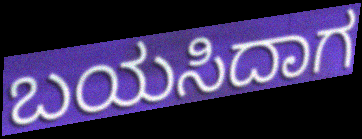
ಬಯಸಿದಾಗ